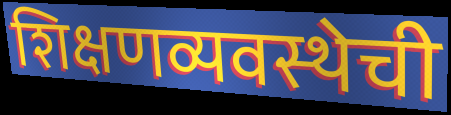
शिक्षणव्यवस्थेची